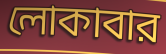
লোকাবার